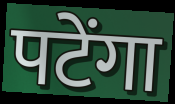
पटेंगा